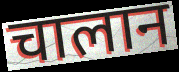
चालान